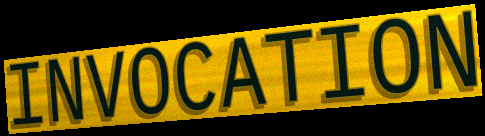
INVOCATION